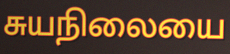
சுயநிலையை